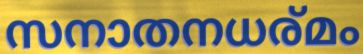
സനാതനധര്മം